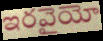
ఇరవైయో